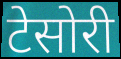
टेसोरी